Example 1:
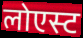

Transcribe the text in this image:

लोएस्ट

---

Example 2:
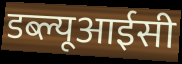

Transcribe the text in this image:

डब्ल्यूआईसी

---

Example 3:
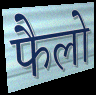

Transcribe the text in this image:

फैलो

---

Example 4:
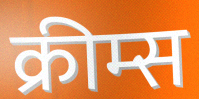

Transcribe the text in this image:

क्रीम्‍स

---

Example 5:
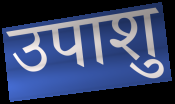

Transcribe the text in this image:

उपाशु